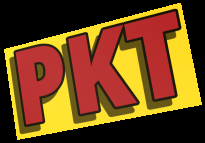
PKT